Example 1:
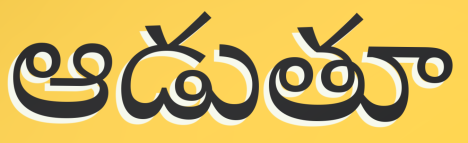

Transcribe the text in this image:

ఆడుతూ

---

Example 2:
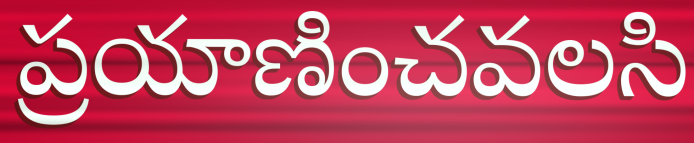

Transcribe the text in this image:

ప్రయాణించవలసి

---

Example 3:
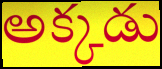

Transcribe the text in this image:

అక్కడు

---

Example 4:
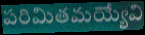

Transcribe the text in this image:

పరిమితమయ్యేవి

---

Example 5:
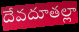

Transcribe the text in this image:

దేవదూతల్లా